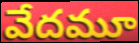
వేదమూ